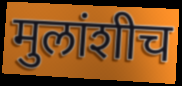
मुलांशीच